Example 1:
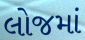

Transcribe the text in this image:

લોજમાં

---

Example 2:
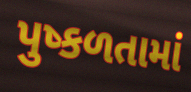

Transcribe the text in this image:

પુષ્કળતામાં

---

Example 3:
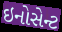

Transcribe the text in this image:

ઇનોસેન્ટ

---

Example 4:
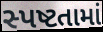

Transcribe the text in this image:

સ્પષ્ટતામાં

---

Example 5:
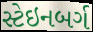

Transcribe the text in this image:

સ્ટેઇનબર્ગ